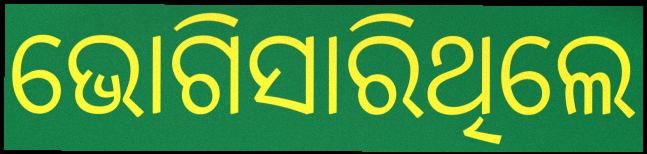
ଭୋଗିସାରିଥିଲେ